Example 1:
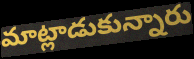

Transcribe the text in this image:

మాట్లాడుకున్నారు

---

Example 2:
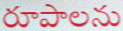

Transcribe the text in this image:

రూపాలను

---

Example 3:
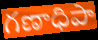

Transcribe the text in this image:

గణాధిపా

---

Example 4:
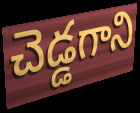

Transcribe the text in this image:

చెడ్డగాని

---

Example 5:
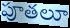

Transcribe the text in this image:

పూతలూ